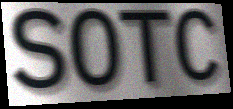
SOTC